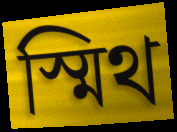
স্মিথ